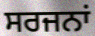
ਸਰਜਨਾਂ